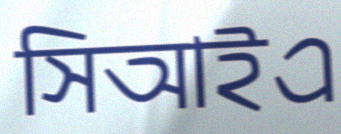
সিআইএ